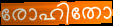
രോഹിതോ